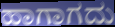
ಹಾಗಾಗದು